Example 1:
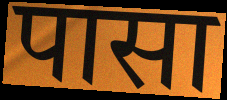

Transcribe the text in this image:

पासा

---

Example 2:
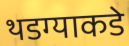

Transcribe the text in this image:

थडग्याकडे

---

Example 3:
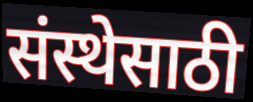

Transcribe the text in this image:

संस्थेसाठी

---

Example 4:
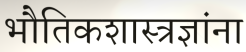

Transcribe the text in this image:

भौतिकशास्त्रज्ञांना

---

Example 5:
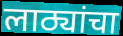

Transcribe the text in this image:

लाठ्यांचा